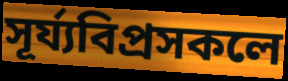
সূৰ্য্যবিপ্ৰসকলে